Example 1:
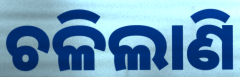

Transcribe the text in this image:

ଚଳିଲାଣି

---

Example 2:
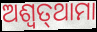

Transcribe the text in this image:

ଅଶ୍ଵତ୍‌ଥାମା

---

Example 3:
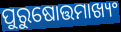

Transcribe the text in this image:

ପୁରୁଷୋତ୍ତମାଖ୍ୟଂ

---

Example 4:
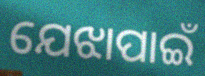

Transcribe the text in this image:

ଯେଝାପାଇଁ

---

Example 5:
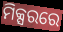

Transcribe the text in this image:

ମିକ୍ସରରେ